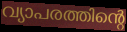
വ്യാപരത്തിന്റെ